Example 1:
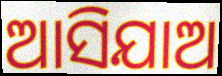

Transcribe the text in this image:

ଆସିଯାଅ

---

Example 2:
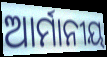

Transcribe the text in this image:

ଆର୍ମାନୀୟ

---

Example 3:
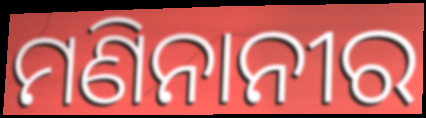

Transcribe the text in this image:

ମଣିନାନୀର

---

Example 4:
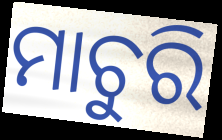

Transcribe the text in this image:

ମାଚୁରି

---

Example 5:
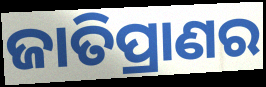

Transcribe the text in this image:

ଜାତିପ୍ରାଣର